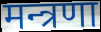
मन्त्रणा